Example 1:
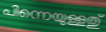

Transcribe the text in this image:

പിന്നെയുള്ളതു്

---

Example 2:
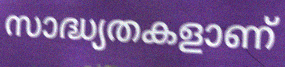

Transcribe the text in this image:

സാദ്ധ്യതകളാണ്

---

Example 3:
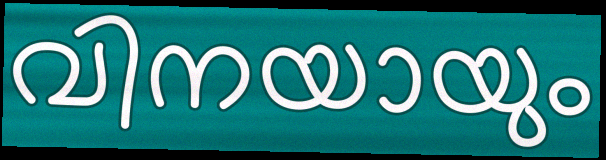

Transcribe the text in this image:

വിനയായും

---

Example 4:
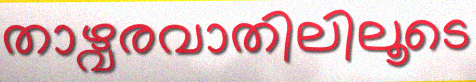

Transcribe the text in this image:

താഴ്വരവാതിലിലൂടെ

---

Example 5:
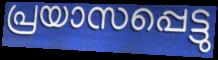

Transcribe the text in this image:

പ്രയാസപ്പെട്ടു